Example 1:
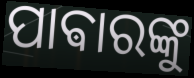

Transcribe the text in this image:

ପାଵାରଙ୍କୁ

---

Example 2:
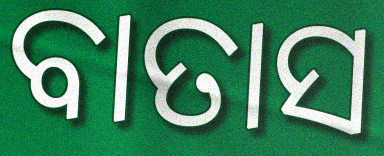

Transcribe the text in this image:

ବାତାସ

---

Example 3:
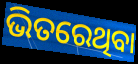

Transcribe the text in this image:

ଭିତରେଥିବା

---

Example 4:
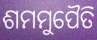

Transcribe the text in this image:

ଶମମୁପୈତି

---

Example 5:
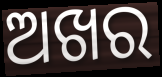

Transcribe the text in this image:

ଅଖର